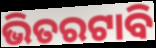
ଭିତରଟାବି